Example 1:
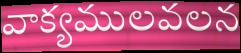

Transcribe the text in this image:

వాక్యములవలన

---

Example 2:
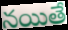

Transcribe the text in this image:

నయితే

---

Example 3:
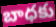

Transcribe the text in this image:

బాధకు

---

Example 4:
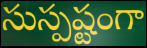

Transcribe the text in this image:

సుస్పష్టంగా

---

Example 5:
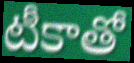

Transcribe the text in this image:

టీకాతో